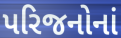
પરિજનોનાં